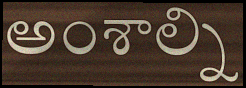
అంశాల్ని